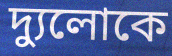
দ্যুলোকে